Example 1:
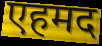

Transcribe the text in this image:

एहमद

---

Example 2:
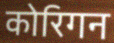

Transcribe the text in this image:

कोरिगन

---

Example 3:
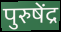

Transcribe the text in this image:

पुरुषेंद्र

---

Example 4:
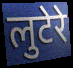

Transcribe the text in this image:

लुटेरे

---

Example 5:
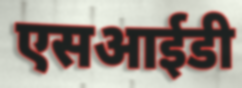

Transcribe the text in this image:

एसआईडी